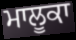
ਮਾਲੂਕਾ